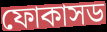
ফোকাসড